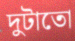
দুটাতো